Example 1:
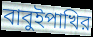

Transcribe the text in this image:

বাবুইপাখির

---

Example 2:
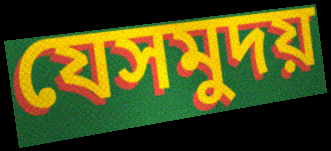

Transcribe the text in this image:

যেসমুদয়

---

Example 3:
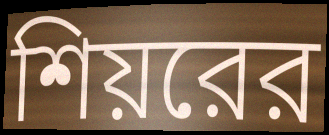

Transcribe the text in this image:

শিয়রের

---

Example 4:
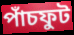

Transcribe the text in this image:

পাঁচফুট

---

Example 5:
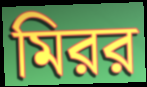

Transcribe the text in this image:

মিরর